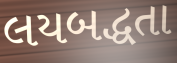
લયબદ્ધતા